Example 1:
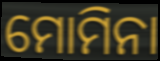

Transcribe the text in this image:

ମୋମିନା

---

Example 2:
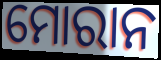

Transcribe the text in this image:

ମୋରାନ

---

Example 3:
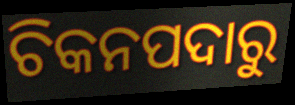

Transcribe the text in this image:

ଚିକନପଦାରୁ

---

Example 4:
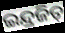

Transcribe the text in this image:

ଇନ୍ଦ୍ରଜିତ୍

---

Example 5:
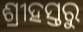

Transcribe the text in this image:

ଶ୍ରୀହସ୍ତରୁ